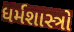
ધર્મશાસ્ત્રો